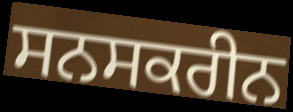
ਸਨਸਕਰੀਨ